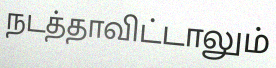
நடத்தாவிட்டாலும்